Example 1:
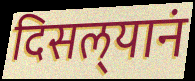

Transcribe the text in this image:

दिसल्यानं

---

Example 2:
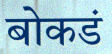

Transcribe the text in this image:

बोकडं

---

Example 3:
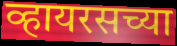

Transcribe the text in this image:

व्हायरसच्या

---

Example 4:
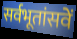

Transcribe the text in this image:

सर्वभूतांसवें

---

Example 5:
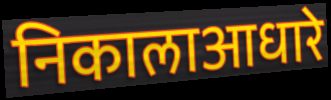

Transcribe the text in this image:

निकालाआधारे